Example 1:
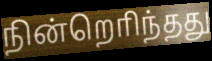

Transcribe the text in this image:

நின்றெரிந்தது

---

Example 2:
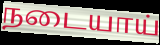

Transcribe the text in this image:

நடையாய்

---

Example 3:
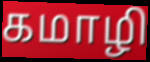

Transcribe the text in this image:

கமாழி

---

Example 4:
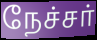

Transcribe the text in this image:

நேச்சர்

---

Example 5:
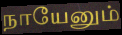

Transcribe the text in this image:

நாயேனும்